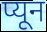
प्यून